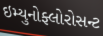
ઇમ્યુનોફ્લોરોસન્ટ